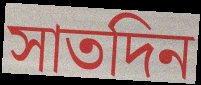
সাতদিন